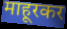
माहूरकर